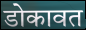
डोकावत